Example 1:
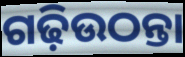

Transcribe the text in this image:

ଗଢ଼ିଉଠନ୍ତା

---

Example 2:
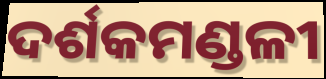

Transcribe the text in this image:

ଦର୍ଶକମଣ୍ଡଳୀ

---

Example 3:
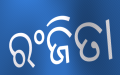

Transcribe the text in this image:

ରଂଜିତା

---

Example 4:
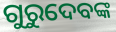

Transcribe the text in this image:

ଗୁରୁଦେବଙ୍କ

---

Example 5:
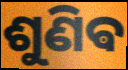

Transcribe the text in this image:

ଶୁଣିଵ